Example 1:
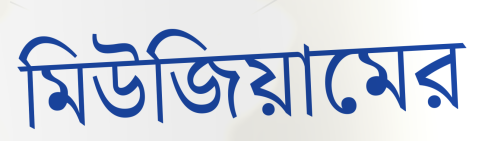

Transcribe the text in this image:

মিউজিয়ামের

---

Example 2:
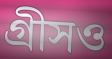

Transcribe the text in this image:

গ্রীসও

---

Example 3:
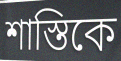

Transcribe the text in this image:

শাস্তিকে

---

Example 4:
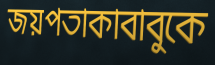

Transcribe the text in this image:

জয়পতাকাবাবুকে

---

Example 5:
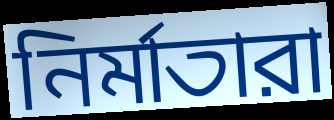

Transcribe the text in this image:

নির্মাতারা